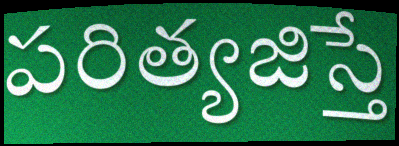
పరిత్యజిస్తే